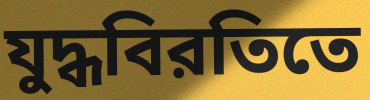
যুদ্ধবিরতিতে